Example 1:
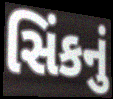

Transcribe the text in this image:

સિંકનું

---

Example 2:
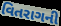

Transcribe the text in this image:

વિતરાગની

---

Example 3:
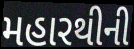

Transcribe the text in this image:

મહારથીની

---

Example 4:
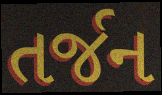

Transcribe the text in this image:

તર્જન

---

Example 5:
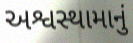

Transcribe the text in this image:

અશ્વસ્થામાનું